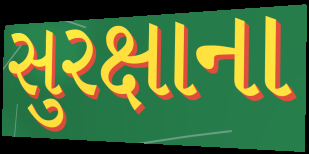
સુરક્ષાના